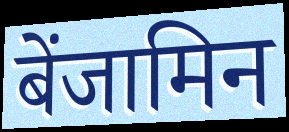
बेंजामिन